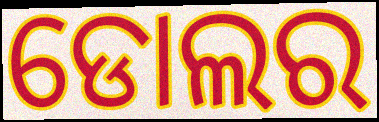
ଡୋଲର